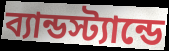
ব্যান্ডস্ট্যান্ডে